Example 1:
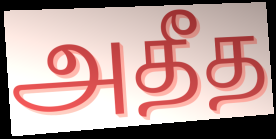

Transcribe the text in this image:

அதீத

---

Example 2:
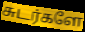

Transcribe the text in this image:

சுடர்களே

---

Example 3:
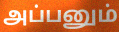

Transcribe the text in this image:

அப்பனும்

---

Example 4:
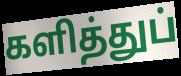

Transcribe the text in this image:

களித்துப்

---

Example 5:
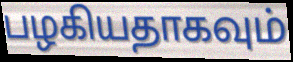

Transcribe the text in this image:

பழகியதாகவும்